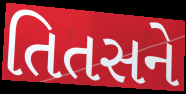
તિતસને